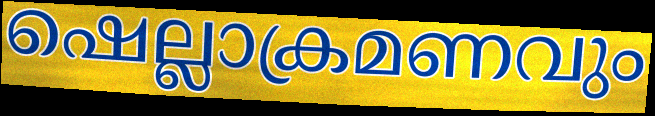
ഷെല്ലാക്രമണവും